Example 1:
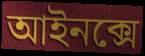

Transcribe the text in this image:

আইনক্সে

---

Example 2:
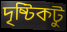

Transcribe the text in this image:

দৃষ্টিকটু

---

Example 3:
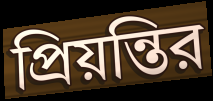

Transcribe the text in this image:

প্রিয়ন্তির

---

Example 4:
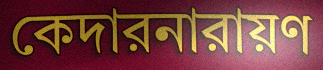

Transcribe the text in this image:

কেদারনারায়ণ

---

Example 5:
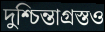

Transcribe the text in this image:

দুশ্চিন্তাগ্রস্তও